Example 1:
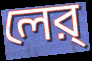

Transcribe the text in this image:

লের্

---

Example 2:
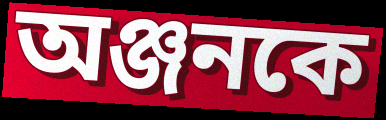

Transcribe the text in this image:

অঞ্জনকে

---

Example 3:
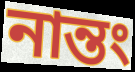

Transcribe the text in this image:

নান্তং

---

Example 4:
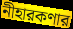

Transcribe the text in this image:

নীহারকণার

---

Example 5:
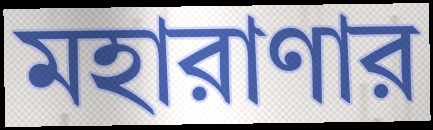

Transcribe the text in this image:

মহারাণার